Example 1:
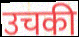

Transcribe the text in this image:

उचकी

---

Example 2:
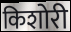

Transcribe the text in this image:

किशोरी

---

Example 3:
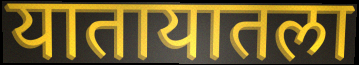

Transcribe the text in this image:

यातायातला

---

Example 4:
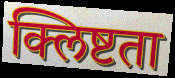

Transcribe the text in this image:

क्लिष्टता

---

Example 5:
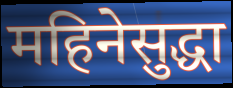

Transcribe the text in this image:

महिनेसुद्धा